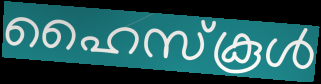
ഹൈസ്കൂൾ